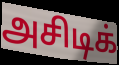
அசிடிக்